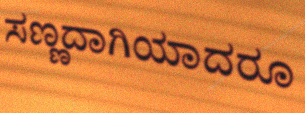
ಸಣ್ಣದಾಗಿಯಾದರೂ